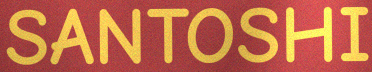
SANTOSHI